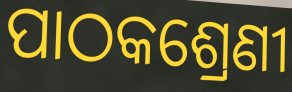
ପାଠକଶ୍ରେଣୀ